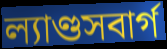
ল্যাণ্ডসবার্গ